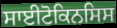
ਸਾਈਟੋਕਿਨਸਿਸ